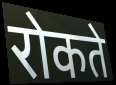
रोकते